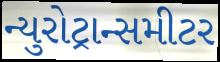
ન્યુરોટ્રાન્સમીટર